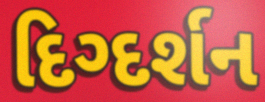
દિગ્દર્શન